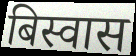
बिस्वास